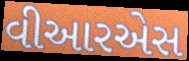
વીઆરએસ